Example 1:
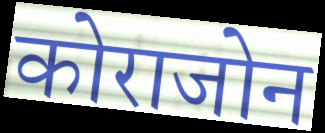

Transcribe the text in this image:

कोराजोन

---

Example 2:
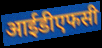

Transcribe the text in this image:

आईडीएफसी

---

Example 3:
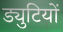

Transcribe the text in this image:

ड्युटियों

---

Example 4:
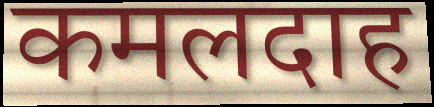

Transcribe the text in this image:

कमलदाह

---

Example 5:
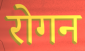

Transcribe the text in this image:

रोगन